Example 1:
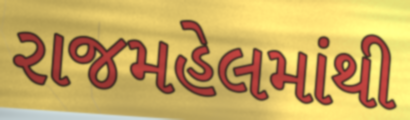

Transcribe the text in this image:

રાજમહેલમાંથી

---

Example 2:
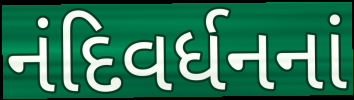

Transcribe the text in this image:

નંદિવર્ધનનાં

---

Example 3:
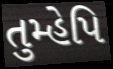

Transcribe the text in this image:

તુમ્હેપિ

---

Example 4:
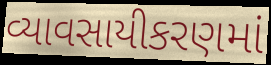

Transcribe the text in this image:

વ્યાવસાયીકરણમાં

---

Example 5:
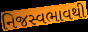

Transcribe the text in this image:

નિજસ્વભાવથી